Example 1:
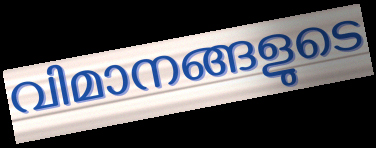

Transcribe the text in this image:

വിമാനങ്ങളുടെ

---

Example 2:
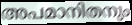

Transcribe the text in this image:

അപമാനിതനും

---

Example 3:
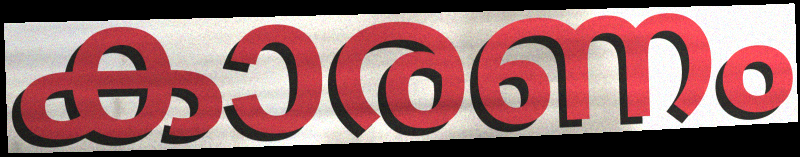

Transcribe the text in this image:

കാരണം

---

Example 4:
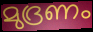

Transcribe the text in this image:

മുദ്രണം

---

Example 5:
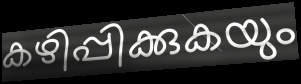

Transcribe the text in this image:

കഴിപ്പിക്കുകയും